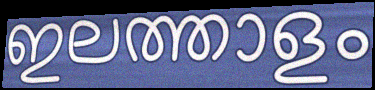
ഇലത്താളം